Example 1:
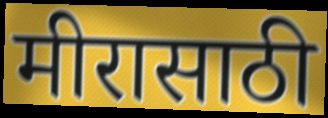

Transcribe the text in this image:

मीरासाठी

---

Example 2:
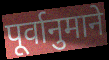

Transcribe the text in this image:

पूर्वानुमाने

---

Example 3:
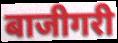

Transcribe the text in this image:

बाजीगरी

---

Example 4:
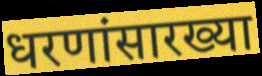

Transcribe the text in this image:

धरणांसारख्या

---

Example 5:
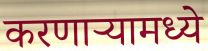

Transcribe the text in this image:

करणाऱ्यामध्ये